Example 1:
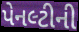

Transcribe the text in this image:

પેનલ્ટીની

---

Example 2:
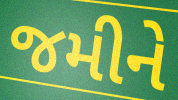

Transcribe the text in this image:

જમીને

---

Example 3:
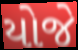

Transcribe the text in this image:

યોજે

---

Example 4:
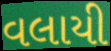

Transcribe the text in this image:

વલાયી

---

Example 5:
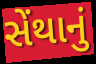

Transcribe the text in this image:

સેંથાનું